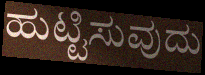
ಹುಟ್ಟಿಸುವುದು